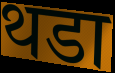
थडा